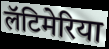
लॅटिमेरिया